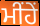
ਮੀਂਹੇਂ